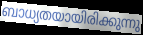
ബാധ്യതയായിരിക്കുന്നു